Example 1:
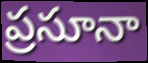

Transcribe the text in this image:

ప్రసూనా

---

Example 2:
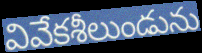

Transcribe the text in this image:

వివేకశీలుండును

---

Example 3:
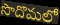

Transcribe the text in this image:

సొదొమలో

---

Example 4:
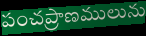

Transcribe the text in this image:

పంచప్రాణములును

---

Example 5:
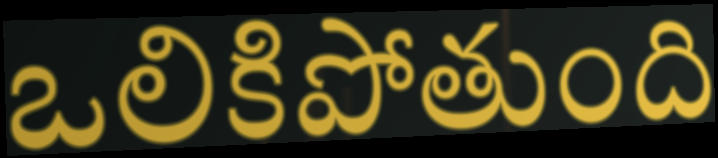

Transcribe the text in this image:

ఒలికిపోతుంది